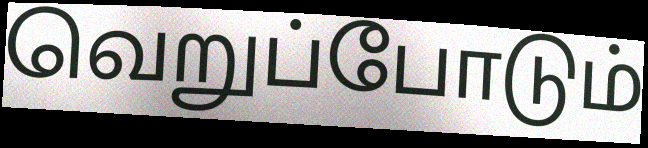
வெறுப்போடும்